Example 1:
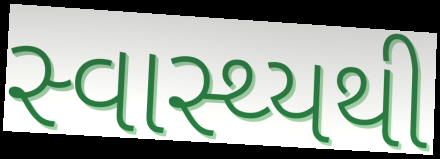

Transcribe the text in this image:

સ્વાસ્થ્યથી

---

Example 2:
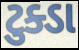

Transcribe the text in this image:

ટુક્ડા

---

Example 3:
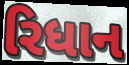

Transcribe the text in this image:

રિધાન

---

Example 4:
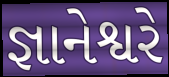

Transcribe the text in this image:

જ્ઞાનેશ્વરે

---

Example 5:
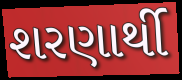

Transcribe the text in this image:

શરણાર્થી